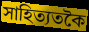
সাহিত্যতকৈ